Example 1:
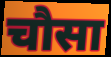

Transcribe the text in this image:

चौसा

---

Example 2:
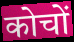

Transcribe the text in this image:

कोचों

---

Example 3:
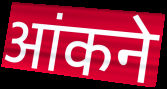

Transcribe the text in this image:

आंकने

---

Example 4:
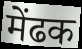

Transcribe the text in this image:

मेंढक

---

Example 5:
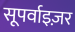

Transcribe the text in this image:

सूपर्वाइज़र